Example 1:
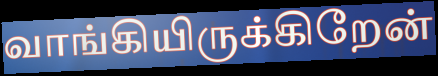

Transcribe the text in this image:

வாங்கியிருக்கிறேன்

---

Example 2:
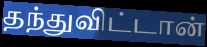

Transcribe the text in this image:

தந்துவிட்டான்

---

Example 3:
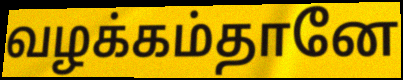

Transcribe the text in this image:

வழக்கம்தானே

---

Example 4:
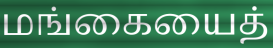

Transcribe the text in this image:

மங்கையைத்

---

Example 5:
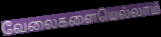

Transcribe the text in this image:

வேலைகளையெல்லாம்